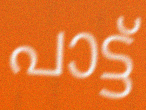
പാട്ട്